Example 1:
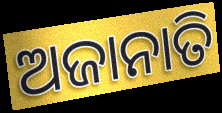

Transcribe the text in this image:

ଅଜାନାତି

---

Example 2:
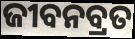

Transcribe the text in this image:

ଜୀବନବ୍ରତ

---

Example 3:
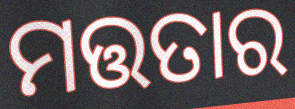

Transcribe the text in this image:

ମତ୍ତତାର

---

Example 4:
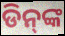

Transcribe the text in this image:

ଡିନ୍‌ଙ୍କ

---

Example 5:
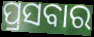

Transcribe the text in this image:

ପ୍ରସବାର